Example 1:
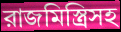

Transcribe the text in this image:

রাজমিস্ত্রিসহ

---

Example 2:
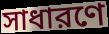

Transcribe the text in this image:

সাধারণে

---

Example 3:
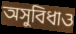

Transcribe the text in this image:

অসুবিধাও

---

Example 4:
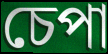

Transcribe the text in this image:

চেপা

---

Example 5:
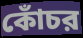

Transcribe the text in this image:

কোঁচর